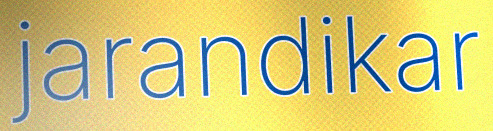
jarandikar